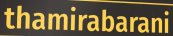
thamirabarani